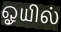
ஓயில்